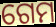
ଗେମ